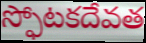
స్ఫోటకదేవత